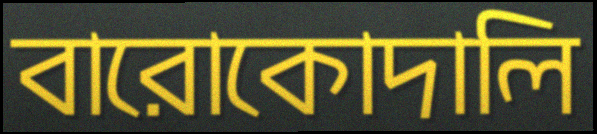
বারোকোদালি